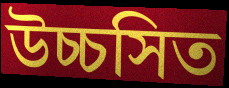
উচ্চসিত